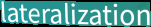
lateralization